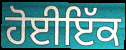
ਹੋਈਇੱਕ